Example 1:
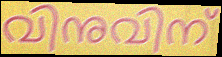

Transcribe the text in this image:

വിനുവിന്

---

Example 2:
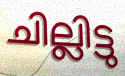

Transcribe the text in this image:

ചില്ലിട്ടു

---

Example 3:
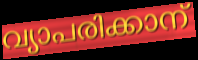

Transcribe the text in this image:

വ്യാപരിക്കാന്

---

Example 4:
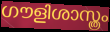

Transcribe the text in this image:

ഗൗളിശാസ്ത്രം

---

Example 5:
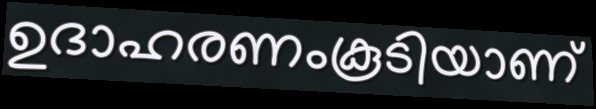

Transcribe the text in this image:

ഉദാഹരണംകൂടിയാണ്